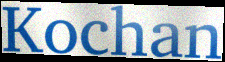
Kochan